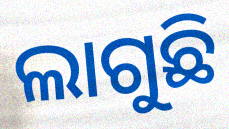
ଲାଗୁଛି